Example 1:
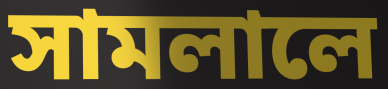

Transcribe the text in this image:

সামলালে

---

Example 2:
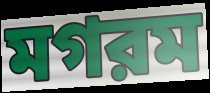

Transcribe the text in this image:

মগরম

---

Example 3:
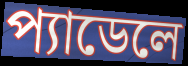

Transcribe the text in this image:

প্যাডেলে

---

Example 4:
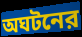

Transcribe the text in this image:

অঘটনের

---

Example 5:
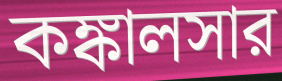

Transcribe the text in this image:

কঙ্কালসার